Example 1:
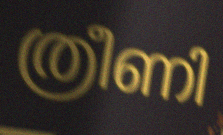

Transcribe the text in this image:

ത്രീണി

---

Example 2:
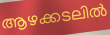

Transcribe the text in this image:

ആഴക്കടലിൽ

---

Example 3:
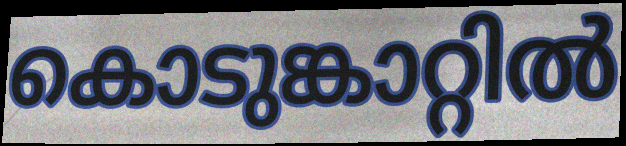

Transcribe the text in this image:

കൊടുങ്കാറ്റിൽ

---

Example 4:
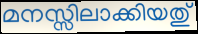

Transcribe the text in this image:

മനസ്സിലാക്കിയതു്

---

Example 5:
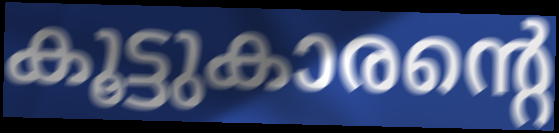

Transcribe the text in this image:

കൂട്ടുകാരന്റെ